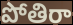
పోతిరా